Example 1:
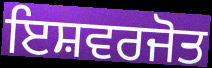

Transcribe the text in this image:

ਇਸ਼ਵਰਜੋਤ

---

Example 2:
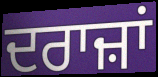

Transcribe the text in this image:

ਦਰਾਜ਼ਾਂ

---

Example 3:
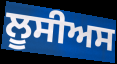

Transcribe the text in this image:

ਲੂਸੀਅਸ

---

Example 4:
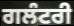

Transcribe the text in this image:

ਗਲੰਟਰੀ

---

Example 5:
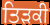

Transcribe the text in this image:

ਤਿੜਕੀ